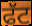
ਫੱਟ